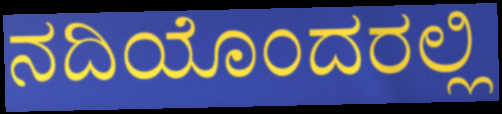
ನದಿಯೊಂದರಲ್ಲಿ